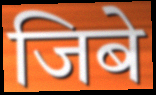
जिबे